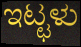
ಇಟ್ಟಳು